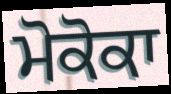
ਮੋਕੋਕਾ